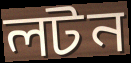
লটন